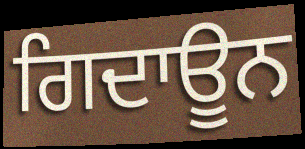
ਗਿਦਾਊਨ